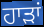
ਹਾੜਾਂ